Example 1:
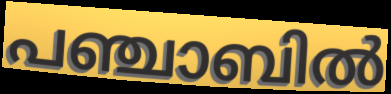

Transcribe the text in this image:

പഞ്ചാബിൽ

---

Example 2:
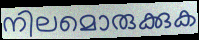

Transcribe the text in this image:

നിലമൊരുക്കുക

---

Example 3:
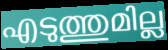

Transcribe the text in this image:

എടുത്തുമില്ല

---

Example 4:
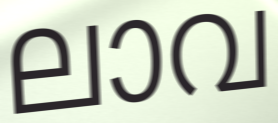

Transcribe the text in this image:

ലാവ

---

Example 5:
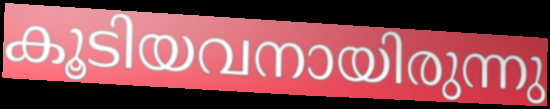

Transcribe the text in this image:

കൂടിയവനായിരുന്നു